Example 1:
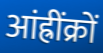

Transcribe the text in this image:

आंह्रींक्रों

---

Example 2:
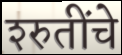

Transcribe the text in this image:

श्रुतींचे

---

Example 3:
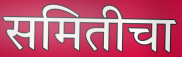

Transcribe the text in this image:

समितीचा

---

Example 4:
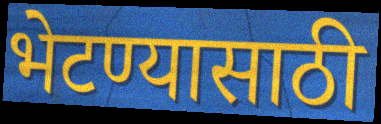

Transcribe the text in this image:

भेटण्यासाठी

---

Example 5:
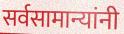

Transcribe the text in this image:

सर्वसामान्यांनी